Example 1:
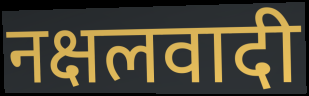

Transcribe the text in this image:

नक्षलवादी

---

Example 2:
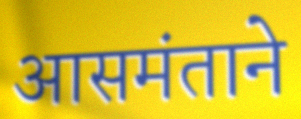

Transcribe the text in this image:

आसमंताने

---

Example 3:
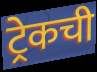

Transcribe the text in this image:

ट्रेकची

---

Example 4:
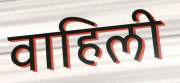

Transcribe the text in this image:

वाहिली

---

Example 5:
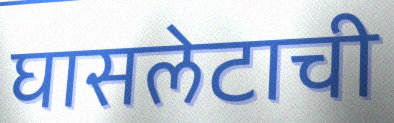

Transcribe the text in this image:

घासलेटाची